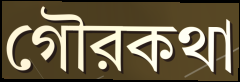
গৌরকথা